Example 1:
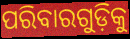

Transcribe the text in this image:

ପରିବାରଗୁଡ଼ିକୁ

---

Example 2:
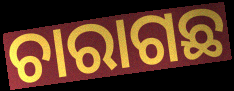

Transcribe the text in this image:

ଚାରାଗଛ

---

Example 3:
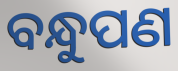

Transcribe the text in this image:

ବନ୍ଧୁପଣ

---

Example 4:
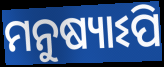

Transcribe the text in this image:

ମନୁଷ୍ୟାଽପି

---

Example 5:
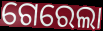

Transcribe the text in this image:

ଗେରେଲା